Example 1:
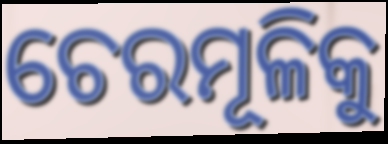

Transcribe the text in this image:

ଚେରମୂଳିକୁ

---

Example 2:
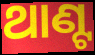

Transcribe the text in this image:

ଥାଣ୍ଟ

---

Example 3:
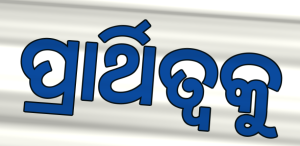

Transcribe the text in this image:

ପ୍ରାର୍ଥିତ୍ୱକୁ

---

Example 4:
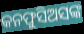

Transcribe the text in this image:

କନଫୁସିଅସଙ୍କ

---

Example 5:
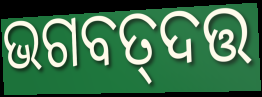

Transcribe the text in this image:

ଭଗବତ୍‌ଦତ୍ତ